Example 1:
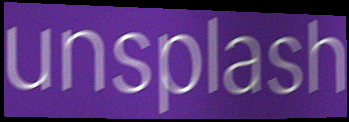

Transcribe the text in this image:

unsplash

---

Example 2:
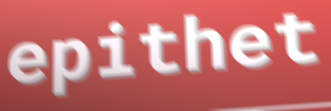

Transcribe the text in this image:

epithet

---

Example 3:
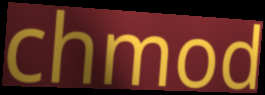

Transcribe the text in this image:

chmod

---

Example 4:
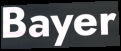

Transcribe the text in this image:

Bayer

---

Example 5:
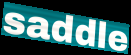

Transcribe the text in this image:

saddle